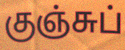
குஞ்சுப்